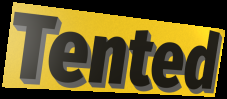
Tented